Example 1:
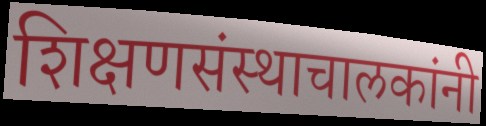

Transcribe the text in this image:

शिक्षणसंस्थाचालकांनी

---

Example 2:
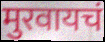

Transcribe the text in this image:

मुरवायचं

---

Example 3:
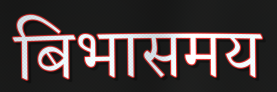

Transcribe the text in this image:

बिभासमय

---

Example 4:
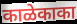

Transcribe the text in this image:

काळेकाका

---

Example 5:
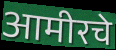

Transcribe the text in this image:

आमीरचे